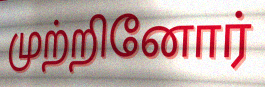
முற்றினோர்